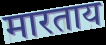
मारताय